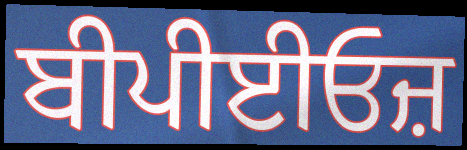
ਬੀਪੀਈਓਜ਼